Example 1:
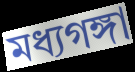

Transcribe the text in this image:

মধ্যগঙ্গা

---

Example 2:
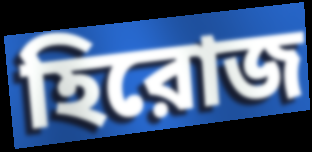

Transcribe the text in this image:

হিরোজ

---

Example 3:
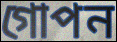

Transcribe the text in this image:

গোপন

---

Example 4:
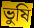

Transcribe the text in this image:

ভুষি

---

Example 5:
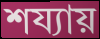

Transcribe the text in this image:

শয্যায়